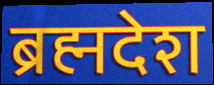
ब्रह्मदेश